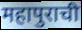
महापुराची